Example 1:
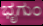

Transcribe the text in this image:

ಭೃಗುಂ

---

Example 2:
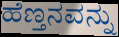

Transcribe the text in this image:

ಹೆಣ್ತನವನ್ನು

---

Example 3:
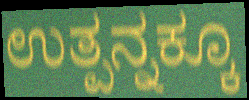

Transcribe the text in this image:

ಉತ್ಪನ್ನಕ್ಕೂ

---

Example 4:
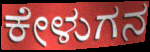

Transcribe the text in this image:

ಕೇಳುಗನ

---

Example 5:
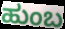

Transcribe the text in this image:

ಹುಂಬ